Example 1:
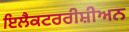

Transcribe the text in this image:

ਇਲੈਕਟਰਰੀਸ਼ੀਅਨ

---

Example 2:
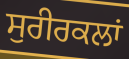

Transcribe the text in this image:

ਸੁਰੀਰਕਲਾਂ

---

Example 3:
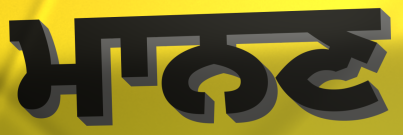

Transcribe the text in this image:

ਮਾਨਣ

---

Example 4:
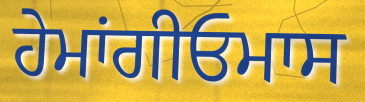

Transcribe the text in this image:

ਹੇਮਾਂਗੀਓਮਾਸ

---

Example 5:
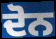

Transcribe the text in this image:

ਦੋਨ